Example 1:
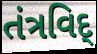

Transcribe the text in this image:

તંત્રવિદ્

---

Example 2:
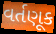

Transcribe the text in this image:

વર્તણૂક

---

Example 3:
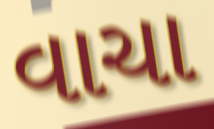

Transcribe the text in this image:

વાચા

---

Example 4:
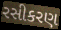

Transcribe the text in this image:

રસીકરણ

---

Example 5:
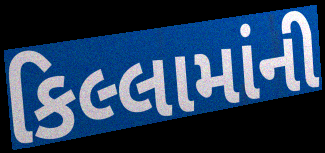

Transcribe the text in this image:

કિલ્લામાંની